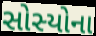
સોસ્યોના